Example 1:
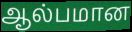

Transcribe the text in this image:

ஆல்பமான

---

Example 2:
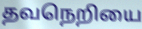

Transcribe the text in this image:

தவநெறியை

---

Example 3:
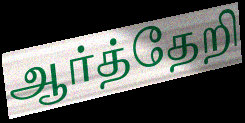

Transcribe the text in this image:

ஆர்த்தேறி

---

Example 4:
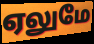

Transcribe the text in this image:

ஏலுமே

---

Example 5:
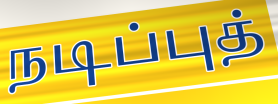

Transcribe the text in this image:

நடிப்புத்